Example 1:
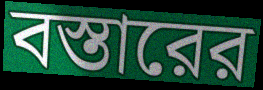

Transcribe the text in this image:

বস্তারের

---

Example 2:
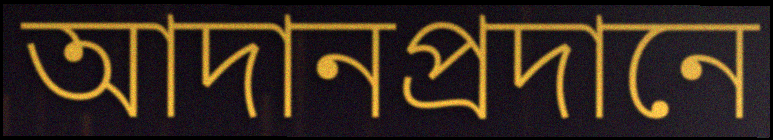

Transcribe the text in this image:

আদানপ্রদানে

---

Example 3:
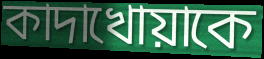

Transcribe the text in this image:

কাদাখোয়াকে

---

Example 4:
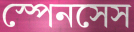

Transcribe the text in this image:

স্পেনসেস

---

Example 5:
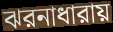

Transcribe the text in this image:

ঝরনাধারায়